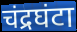
चंद्रघंटा